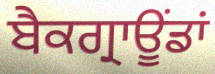
ਬੈਕਗ੍ਰਾਊਂਡਾਂ